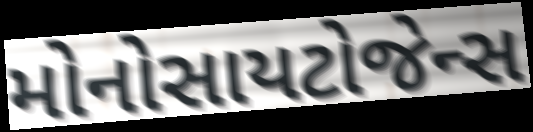
મોનોસાયટોજેન્સ